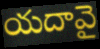
యదావై